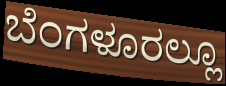
ಬೆಂಗಳೂರಲ್ಲೂ